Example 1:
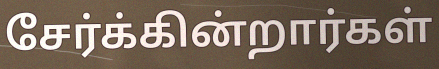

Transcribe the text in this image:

சேர்க்கின்றார்கள்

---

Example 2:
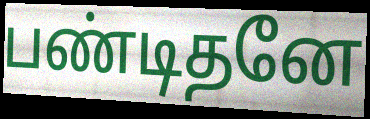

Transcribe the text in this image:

பண்டிதனே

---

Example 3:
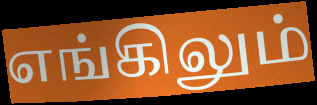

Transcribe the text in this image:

எங்கிலும்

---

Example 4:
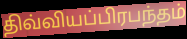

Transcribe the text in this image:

திவ்வியப்பிரபந்தம்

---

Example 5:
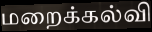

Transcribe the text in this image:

மறைக்கல்வி